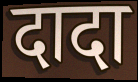
दादा